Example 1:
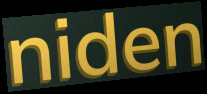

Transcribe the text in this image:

niden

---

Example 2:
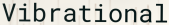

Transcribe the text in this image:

Vibrational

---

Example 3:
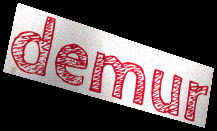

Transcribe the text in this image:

demur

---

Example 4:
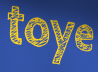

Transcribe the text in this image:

toye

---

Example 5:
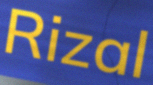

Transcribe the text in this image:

Rizal